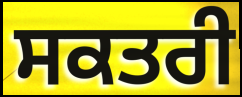
ਸਕਤਰੀ